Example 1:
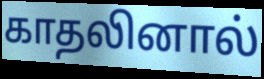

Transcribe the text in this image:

காதலினால்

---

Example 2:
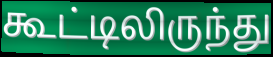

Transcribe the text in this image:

கூட்டிலிருந்து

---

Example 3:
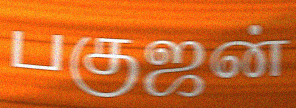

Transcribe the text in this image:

பகுஜன்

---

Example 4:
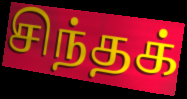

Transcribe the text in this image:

சிந்தக்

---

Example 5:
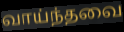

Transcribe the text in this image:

வாய்ந்தவை